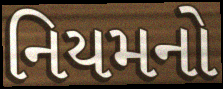
નિયમનો